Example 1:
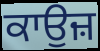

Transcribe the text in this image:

ਕਾਉਜ਼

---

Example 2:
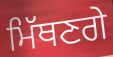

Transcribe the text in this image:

ਮਿੱਥਣਗੇ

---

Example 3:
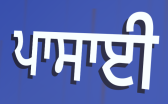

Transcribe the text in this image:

ਪਾਸਾਈ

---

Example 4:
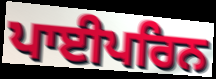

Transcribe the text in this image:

ਪਾਈਪਰਿਨ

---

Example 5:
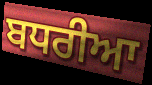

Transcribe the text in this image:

ਬਧਰੀਆ